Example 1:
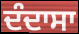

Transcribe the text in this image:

ਦੰਦਾਸਾ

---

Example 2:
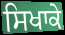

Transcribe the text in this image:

ਸਿਖਾਕੇ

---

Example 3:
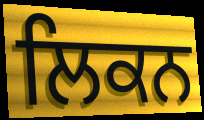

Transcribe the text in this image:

ਲਿਕਨ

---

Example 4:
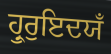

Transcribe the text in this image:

ਹ੍ਰੁਰੁਇਦਯਁ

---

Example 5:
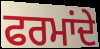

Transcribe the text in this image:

ਫਰਮਾਂਦੇ